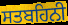
ਸਤਬਹਿਨੀ